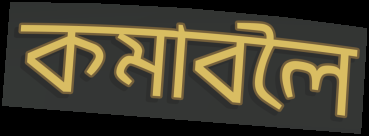
কমাবলৈ